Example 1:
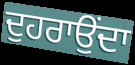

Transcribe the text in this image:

ਦੁਹਰਾਉਂਦਾ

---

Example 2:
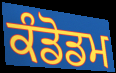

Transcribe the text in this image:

ਕੰਡੋਡਮ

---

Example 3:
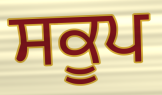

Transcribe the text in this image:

ਸਕੂਪ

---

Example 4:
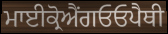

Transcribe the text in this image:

ਮਾਈਕ੍ਰੋਐਂਗਓਓਪੈਥੀ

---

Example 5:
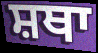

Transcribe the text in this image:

ਸ਼ਥਾ